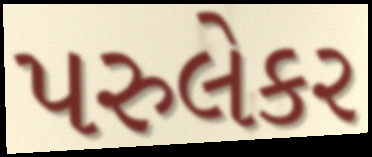
પરુલેકર